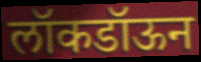
लॉकडॉऊन